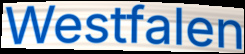
Westfalen